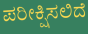
ಪರೀಕ್ಷಿಸಲಿದೆ